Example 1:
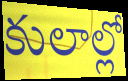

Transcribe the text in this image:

కులాల్లో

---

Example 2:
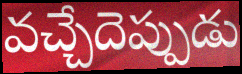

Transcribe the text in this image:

వచ్చేదెప్పుడు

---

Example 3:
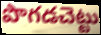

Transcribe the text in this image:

పొగడచెట్టు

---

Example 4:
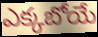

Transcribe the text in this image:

ఎక్కబోయే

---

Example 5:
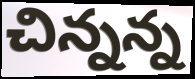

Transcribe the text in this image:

చిన్నన్న